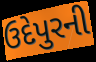
ઉદેપુરની